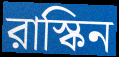
রাস্কিন